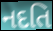
નદતિ